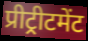
प्रीट्रीटमेंट